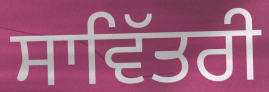
ਸਾਵਿੱਤਰੀ